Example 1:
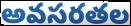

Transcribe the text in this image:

అవసరతల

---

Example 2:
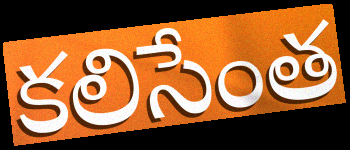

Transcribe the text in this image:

కలిసేంత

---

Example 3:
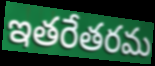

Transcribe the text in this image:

ఇతరేతరమ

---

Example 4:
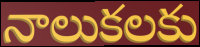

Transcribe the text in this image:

నాలుకలకు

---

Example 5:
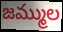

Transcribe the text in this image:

జమ్ముల